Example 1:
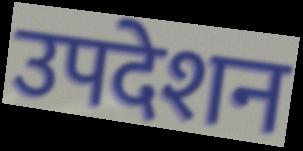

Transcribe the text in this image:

उपदेशन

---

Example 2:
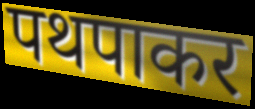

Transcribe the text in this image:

पथपाकर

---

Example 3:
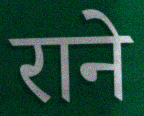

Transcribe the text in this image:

राने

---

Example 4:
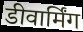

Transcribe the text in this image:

डीवार्मिंग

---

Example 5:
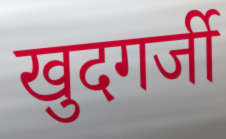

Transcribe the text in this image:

खुदगर्जी